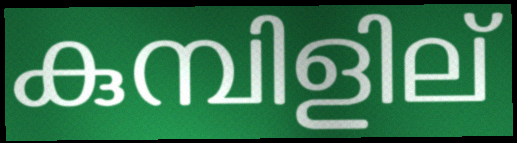
കുമ്പിളില്